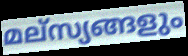
മല്സ്യങ്ങളും